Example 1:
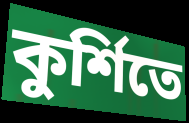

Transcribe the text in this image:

কুর্শিতে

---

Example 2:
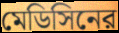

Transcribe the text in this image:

মেডিসিনের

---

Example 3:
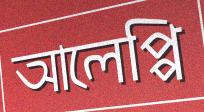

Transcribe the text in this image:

আলেপ্পি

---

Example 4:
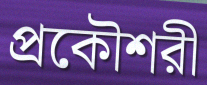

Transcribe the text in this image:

প্রকৌশরী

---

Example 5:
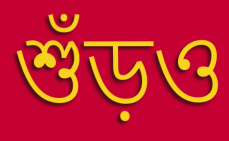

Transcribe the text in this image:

শুঁড়ও